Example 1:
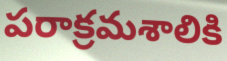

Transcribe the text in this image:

పరాక్రమశాలికి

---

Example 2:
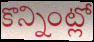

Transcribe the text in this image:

కొన్నింట్లో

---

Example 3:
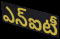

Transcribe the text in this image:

ఎన్ఐటీ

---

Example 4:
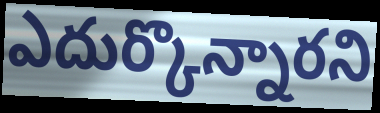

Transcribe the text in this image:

ఎదుర్కొన్నారని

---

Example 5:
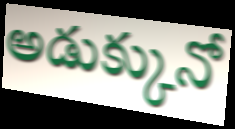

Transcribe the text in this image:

అడుక్కునో